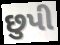
છુપી